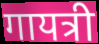
गायत्री